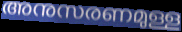
അനുസരണമുള്ള